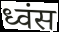
ध्वंस